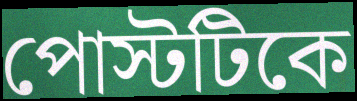
পোস্টটিকে